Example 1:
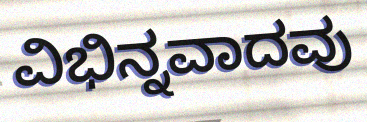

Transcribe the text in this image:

ವಿಭಿನ್ನವಾದವು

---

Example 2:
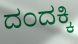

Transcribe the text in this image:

ದಂದಕ್ಕಿ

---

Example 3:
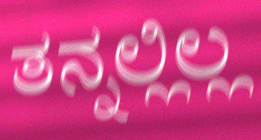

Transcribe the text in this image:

ತನ್ನಲ್ಲಿಲ್ಲ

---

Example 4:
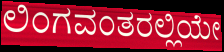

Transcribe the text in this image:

ಲಿಂಗವಂತರಲ್ಲಿಯೇ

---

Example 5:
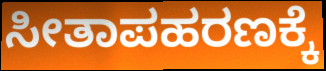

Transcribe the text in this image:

ಸೀತಾಪಹರಣಕ್ಕೆ